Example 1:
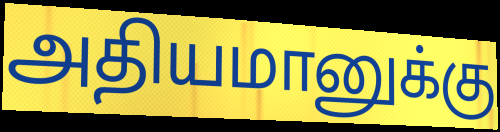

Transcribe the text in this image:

அதியமானுக்கு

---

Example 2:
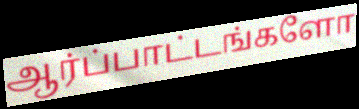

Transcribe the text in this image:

ஆர்ப்பாட்டங்களோ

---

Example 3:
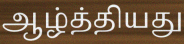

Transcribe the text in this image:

ஆழ்த்தியது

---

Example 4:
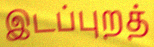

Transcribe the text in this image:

இடப்புறத்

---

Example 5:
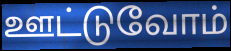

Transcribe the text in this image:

ஊட்டுவோம்